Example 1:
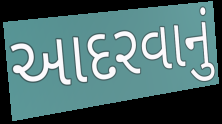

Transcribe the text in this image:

આદરવાનું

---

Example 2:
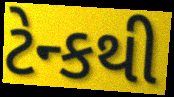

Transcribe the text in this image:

ટેન્કથી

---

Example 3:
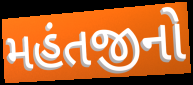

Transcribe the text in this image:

મહંતજીનો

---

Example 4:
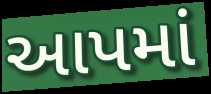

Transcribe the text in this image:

આપમાં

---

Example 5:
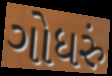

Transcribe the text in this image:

ગોધરું